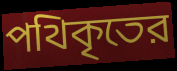
পথিকৃতের